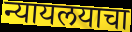
न्यायलयाचा